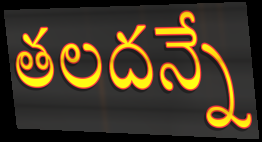
తలదన్నే